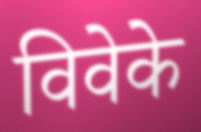
विवेके